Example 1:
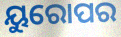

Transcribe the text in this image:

ୟୁରୋପର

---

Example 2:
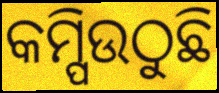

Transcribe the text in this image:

କମ୍ପିଉଠୁଛି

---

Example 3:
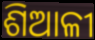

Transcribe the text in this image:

ଶିଆଳୀ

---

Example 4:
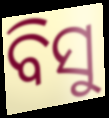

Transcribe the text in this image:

ବିସୁ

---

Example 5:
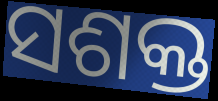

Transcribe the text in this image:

ସଶକ୍ତ